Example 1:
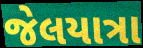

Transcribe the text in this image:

જેલયાત્રા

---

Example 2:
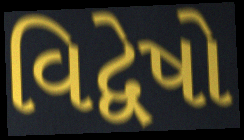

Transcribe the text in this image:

વિદ્વેષો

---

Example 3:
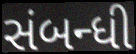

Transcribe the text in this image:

સંબન્ધી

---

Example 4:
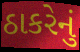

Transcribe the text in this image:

ઠાકરેનું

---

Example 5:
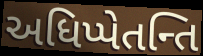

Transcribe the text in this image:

અધિપ્પેતન્તિ